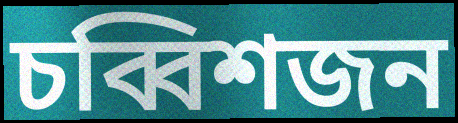
চব্বিশজন